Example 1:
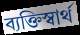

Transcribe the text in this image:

ব্যক্তিস্বার্থ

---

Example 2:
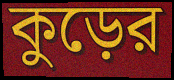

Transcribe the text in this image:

কুড়ের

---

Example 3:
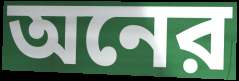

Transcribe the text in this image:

অনের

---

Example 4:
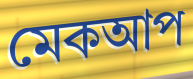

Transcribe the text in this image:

মেকআপ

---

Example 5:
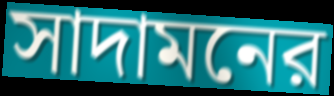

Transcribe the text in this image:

সাদামনের